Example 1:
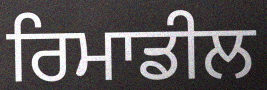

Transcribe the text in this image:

ਰਿਮਾਡੀਲ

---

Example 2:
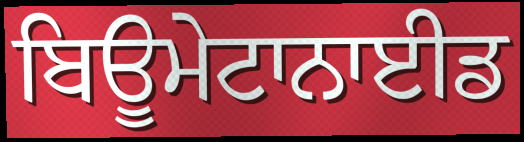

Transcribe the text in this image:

ਬਿਊਮੇਟਾਨਾਈਡ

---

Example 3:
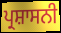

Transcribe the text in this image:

ਪ੍ਰਸ਼ਾਸਨੀ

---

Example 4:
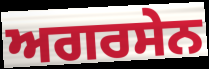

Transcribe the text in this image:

ਅਗਰਸੇਨ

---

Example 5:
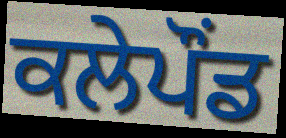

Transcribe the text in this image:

ਕਲੇਪੌਂਡ